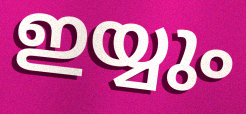
ഇയ്യും